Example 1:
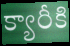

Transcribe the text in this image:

క్యారీకి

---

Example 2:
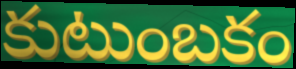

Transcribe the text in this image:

కుటుంబకం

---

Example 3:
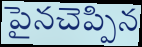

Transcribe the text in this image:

పైనచెప్పిన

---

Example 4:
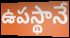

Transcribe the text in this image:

ఉపస్థానే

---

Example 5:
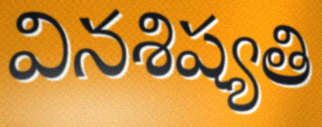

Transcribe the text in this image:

వినశిష్యతి